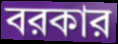
বরকার